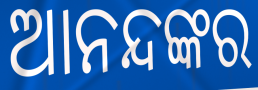
ଆନନ୍ଦଙ୍କର